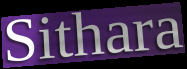
Sithara